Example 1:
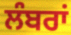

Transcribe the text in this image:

ਲੰਬਰਾਂ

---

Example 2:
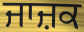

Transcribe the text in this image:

ਜਾਜ਼ਕ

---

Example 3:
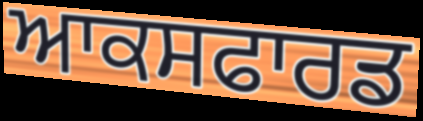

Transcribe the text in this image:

ਆਕਸਫਾਰਡ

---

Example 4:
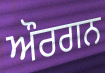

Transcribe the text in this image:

ਔਰਗਨ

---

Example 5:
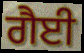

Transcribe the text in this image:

ਗੈਈ